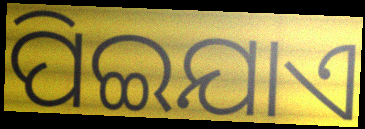
ପିଇଯାଏ